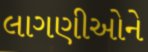
લાગણીઓને